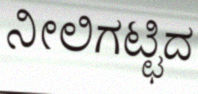
ನೀಲಿಗಟ್ಟಿದ